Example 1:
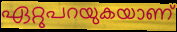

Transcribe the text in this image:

ഏറ്റുപറയുകയാണ്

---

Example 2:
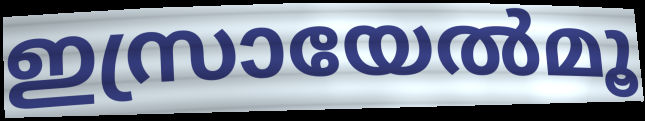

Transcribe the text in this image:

ഇസ്രായേൽമൂ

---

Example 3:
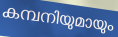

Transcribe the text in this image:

കമ്പനിയുമായും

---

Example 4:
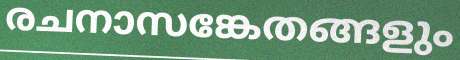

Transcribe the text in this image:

രചനാസങ്കേതങ്ങളും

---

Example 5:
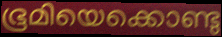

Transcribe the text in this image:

ഭൂമിയെക്കൊണ്ടു